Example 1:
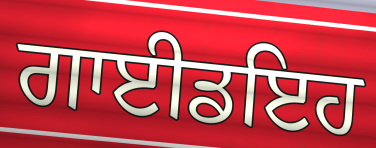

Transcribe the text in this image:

ਗਾਈਡਇਹ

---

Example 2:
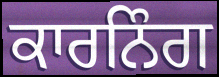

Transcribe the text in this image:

ਕਾਰਨਿੰਗ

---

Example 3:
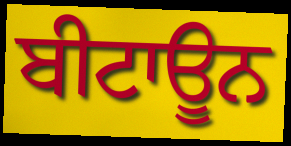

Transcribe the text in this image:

ਬੀਟਾਊਨ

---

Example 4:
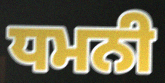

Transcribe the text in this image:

ਧਮਨੀ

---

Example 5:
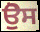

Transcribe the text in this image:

ਉੋਸ